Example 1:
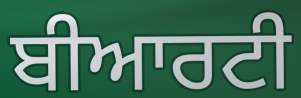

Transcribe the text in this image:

ਬੀਆਰਟੀ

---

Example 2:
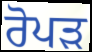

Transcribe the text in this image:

ਰੋਪਡ਼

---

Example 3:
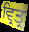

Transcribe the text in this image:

ਵ੍ਰਿਤ੍ਰ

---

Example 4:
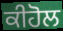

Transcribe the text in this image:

ਕੀਹੋਲ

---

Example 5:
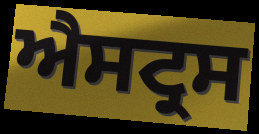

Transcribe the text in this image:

ਐਸਟ੍ਰਸ